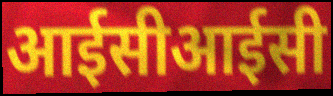
आईसीआईसी